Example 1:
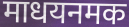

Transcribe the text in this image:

माधयनमक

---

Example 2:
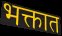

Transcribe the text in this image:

भक्तात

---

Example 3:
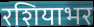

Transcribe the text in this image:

रशियाभर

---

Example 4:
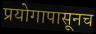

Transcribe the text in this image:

प्रयोगापासूनच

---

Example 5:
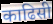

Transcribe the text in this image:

काढिसी